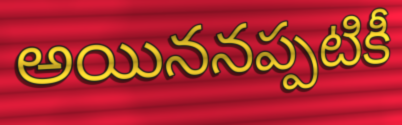
అయిననప్పటికీ